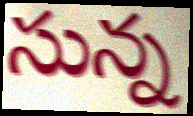
సున్న